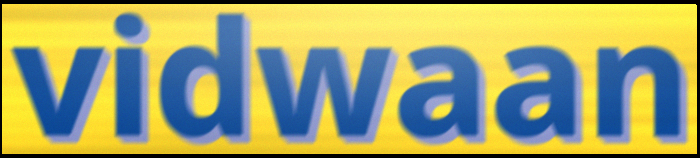
vidwaan